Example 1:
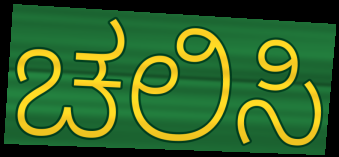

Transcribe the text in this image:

ಚಲಿಸಿ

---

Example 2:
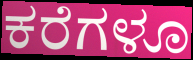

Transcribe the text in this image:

ಕರೆಗಳೂ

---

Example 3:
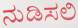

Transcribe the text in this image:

ನುಡಿಸಲಿ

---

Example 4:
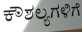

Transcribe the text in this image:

ಕೌಶಲ್ಯಗಳಿಗೆ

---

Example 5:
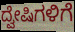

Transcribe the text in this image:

ದ್ವೇಷಿಗಳಿಗೆ